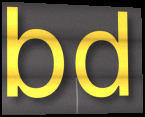
bd